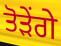
ਤੋੜੇਂਗੇ